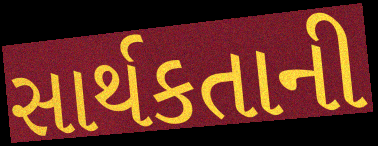
સાર્થકતાની